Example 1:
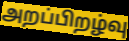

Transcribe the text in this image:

அறப்பிறழ்வு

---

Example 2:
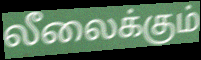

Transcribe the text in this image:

லீலைக்கும்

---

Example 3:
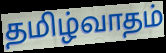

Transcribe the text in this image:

தமிழ்வாதம்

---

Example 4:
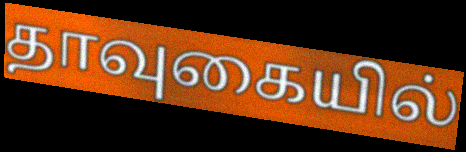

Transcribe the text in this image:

தாவுகையில்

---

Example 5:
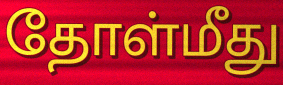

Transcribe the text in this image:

தோள்மீது